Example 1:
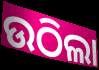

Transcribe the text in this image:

ଉଠିଲା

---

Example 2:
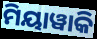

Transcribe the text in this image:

ମିୟାୱାକି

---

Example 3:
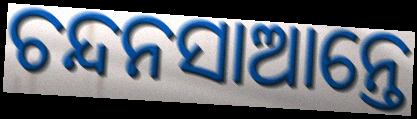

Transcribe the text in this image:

ଚନ୍ଦନସାଆନ୍ତେ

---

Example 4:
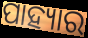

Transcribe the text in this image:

ପାହ୍ୟାର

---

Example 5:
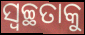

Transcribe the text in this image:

ସ୍ବଚ୍ଛତାକୁ